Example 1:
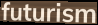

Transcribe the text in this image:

futurism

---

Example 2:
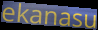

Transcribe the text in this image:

ekanasu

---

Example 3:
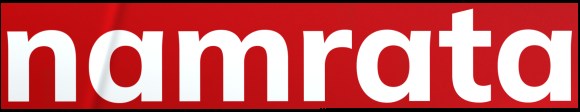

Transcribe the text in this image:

namrata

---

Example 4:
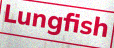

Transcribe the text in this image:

Lungfish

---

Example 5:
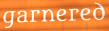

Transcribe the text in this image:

garnered